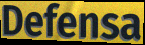
Defensa